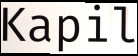
Kapil